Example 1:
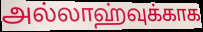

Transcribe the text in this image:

அல்லாஹ்வுக்காக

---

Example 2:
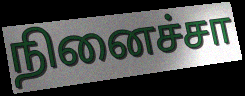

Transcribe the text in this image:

நினைச்சா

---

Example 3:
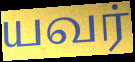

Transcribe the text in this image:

யவர்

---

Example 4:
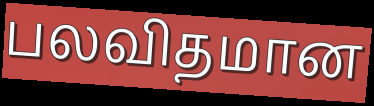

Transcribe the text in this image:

பலவிதமான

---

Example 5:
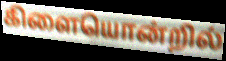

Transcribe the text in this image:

கிளையொன்றில்